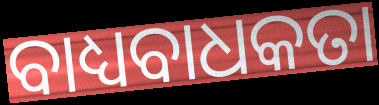
ବାଧ୍ୟବାଧକତା